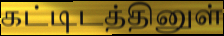
கட்டிடத்தினுள்